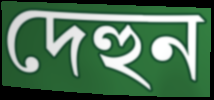
দেহুন